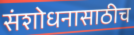
संशोधनासाठीच